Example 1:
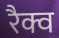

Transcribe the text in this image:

रैक्व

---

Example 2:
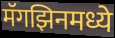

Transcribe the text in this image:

मॅगझिनमध्ये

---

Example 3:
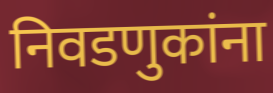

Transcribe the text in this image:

निवडणुकांना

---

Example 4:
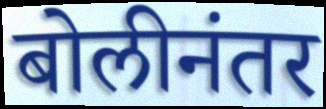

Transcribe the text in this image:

बोलीनंतर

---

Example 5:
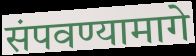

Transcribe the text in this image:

संपवण्यामागे